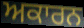
ਅਕਾਰਨ